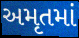
અમૃતમાં